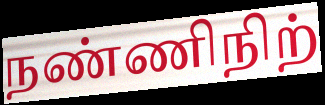
நண்ணிநிற்